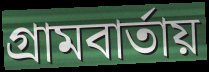
গ্রামবার্তায়